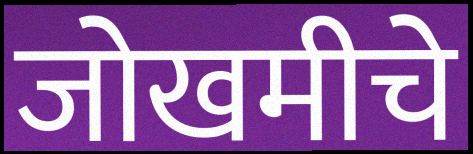
जोखमीचे